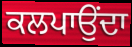
ਕਲਪਾਉਂਦਾ